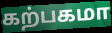
கற்பகமா